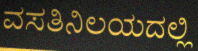
ವಸತಿನಿಲಯದಲ್ಲಿ